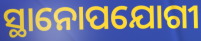
ସ୍ଥାନୋପଯୋଗୀ